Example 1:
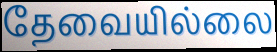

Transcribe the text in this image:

தேவையில்லை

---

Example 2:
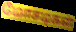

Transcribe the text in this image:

மோசடிகள்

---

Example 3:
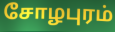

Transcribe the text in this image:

சோழபுரம்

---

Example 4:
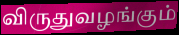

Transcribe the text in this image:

விருதுவழங்கும்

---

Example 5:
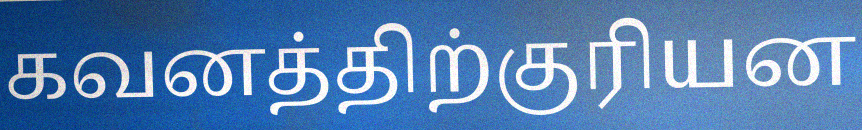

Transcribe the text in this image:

கவனத்திற்குரியன